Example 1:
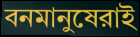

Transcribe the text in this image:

বনমানুষেরাই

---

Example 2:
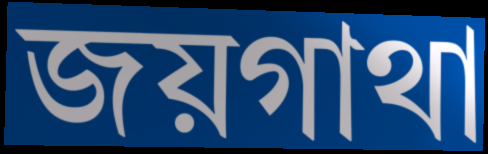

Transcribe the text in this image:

জয়গাথা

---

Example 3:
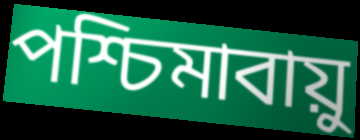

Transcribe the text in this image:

পশ্চিমাবায়ু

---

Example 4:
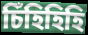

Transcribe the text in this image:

চিঁহিহিহি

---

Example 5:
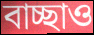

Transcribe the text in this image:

বাচ্ছাও